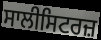
ਸਾਲੀਸਿਟਰਜ਼